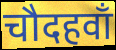
चौदहवाँ